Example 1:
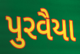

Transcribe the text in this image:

પુરવૈયા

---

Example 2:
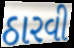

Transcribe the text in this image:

ઠારવી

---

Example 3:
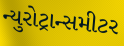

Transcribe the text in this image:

ન્યુરોટ્રાન્સમીટર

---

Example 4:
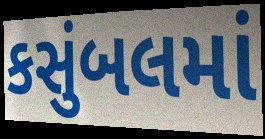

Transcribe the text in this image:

કસુંબલમાં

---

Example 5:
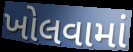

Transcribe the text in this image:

ખોલવામાં